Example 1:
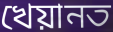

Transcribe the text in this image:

খেয়ানত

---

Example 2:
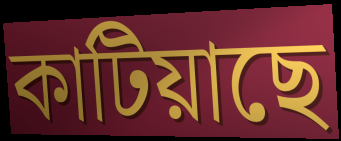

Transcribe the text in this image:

কাটিয়াছে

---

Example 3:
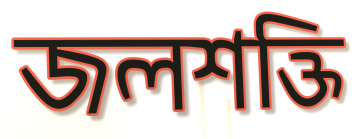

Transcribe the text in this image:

জলশক্তি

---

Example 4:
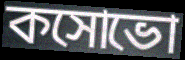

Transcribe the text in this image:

কসোভো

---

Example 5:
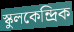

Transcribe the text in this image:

স্কুলকেন্দ্রিক